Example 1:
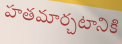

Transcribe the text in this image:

హతమార్చటానికి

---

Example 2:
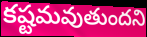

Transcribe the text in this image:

కష్టమవుతుందని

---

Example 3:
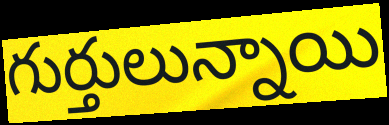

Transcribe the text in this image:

గుర్తులున్నాయి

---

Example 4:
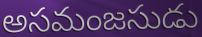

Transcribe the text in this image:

అసమంజసుడు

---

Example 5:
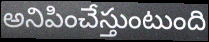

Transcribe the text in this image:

అనిపించేస్తుంటుంది